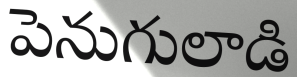
పెనుగులాడి